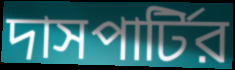
দাসপার্টির